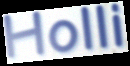
Holli